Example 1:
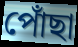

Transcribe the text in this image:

পোঁছা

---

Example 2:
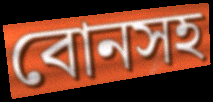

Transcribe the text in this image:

বোনসহ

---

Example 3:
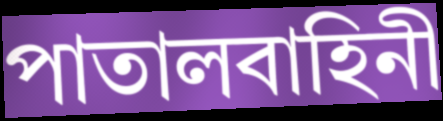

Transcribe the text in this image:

পাতালবাহিনী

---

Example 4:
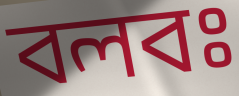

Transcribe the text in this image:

বলবঃ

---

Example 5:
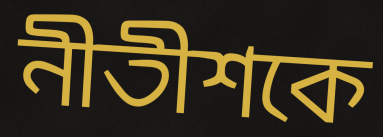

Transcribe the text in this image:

নীতীশকে